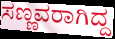
ಸಣ್ಣವರಾಗಿದ್ದ